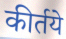
कीर्तये